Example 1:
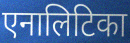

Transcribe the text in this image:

एनालिटिका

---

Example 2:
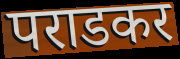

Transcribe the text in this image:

पराडकर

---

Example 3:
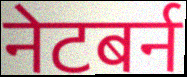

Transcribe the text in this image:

नेटबर्न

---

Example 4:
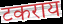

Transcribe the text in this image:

टकराय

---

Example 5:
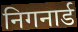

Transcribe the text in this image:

निगनार्ड